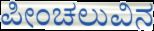
ಪೀಂಚಲುವಿನ